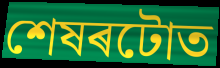
শেষৰটোত